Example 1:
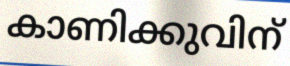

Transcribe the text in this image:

കാണിക്കുവിന്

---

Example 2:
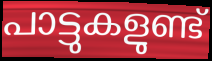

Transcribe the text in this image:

പാട്ടുകളുണ്ട്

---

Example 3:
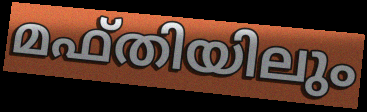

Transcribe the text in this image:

മഫ്തിയിലും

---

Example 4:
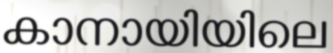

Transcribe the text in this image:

കാനായിയിലെ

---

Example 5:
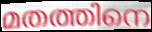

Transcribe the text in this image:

മതത്തിനെ